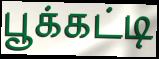
பூக்கட்டி